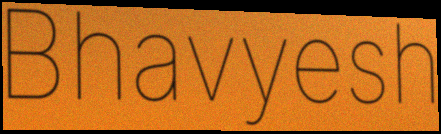
Bhavyesh